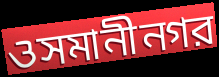
ওসমানীনগর